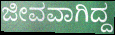
ಜೀವವಾಗಿದ್ದ